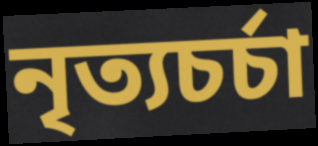
নৃত্যচর্চা